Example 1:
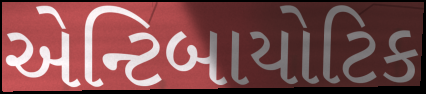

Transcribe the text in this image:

એન્ટિબાયોટિક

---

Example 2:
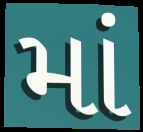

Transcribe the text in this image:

માં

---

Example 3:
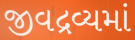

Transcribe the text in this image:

જીવદ્રવ્યમાં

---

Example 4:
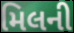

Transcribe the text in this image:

મિલની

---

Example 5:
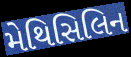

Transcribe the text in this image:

મેથિસિલિન